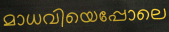
മാധവിയെപ്പോലെ